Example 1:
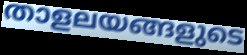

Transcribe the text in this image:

താളലയങ്ങളുടെ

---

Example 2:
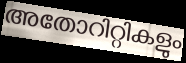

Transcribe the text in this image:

അതോറിറ്റികളും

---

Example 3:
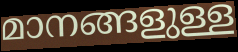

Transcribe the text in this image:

മാനങ്ങളുള്ള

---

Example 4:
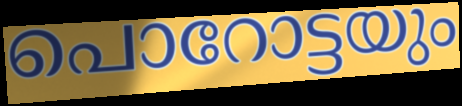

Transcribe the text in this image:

പൊറോട്ടയും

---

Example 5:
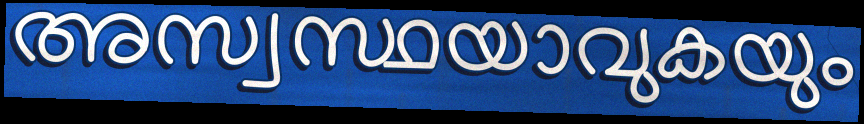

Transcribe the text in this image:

അസ്വസ്ഥയാവുകയും